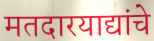
मतदारयाद्यांचे